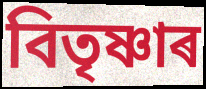
বিতৃষ্ণাৰ